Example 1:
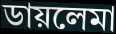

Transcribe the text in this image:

ডায়লেমা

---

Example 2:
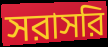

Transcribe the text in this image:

সরাসরি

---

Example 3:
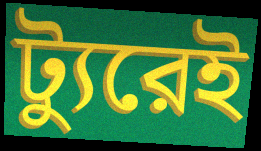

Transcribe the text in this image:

ট্যুরেই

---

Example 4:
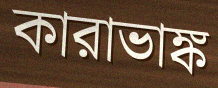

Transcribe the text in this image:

কারাভাঙ্ক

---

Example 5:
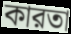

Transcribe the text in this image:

কারতা